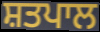
ਸ਼ਤਪਾਲ